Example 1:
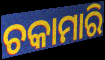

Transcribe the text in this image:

ଚକାମାରି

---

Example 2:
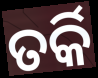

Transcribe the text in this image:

ତର୍କି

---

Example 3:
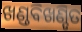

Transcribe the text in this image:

ଖଣ୍ଡବିଖଣ୍ଡିତ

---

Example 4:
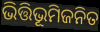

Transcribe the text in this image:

ଭିତ୍ତିଭୂମିଜନିତ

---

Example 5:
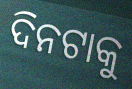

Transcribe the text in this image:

ଦିନଟାକୁ